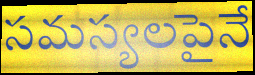
సమస్యలపైనే